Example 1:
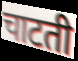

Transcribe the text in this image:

चाटती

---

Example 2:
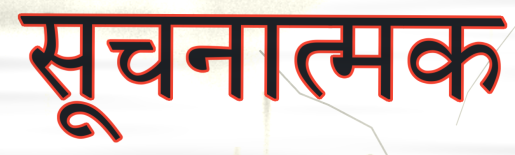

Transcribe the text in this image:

सूचनात्मक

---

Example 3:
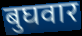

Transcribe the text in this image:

बुघवार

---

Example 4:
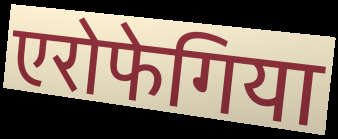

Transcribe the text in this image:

एरोफेगिया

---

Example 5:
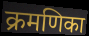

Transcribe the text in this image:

क्रमणिका